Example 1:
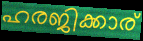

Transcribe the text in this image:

ഹരജിക്കാര്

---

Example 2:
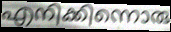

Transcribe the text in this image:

എനിക്കിന്നൊരു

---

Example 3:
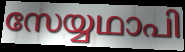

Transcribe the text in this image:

സേയ്യഥാപി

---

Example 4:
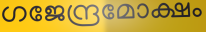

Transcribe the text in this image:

ഗജേന്ദ്രമോക്ഷം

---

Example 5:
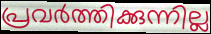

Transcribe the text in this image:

പ്രവർത്തിക്കുന്നില്ല